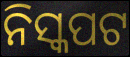
ନିସ୍କପଟ